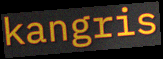
kangris